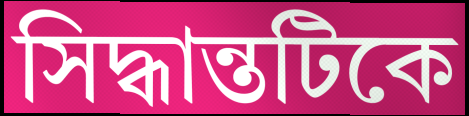
সিদ্ধান্তটিকে